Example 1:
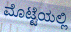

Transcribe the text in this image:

ಮೊಟ್ಟೆಯಲ್ಲಿ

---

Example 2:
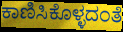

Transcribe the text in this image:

ಕಾಣಿಸಿಕೊಳ್ಳದಂತೆ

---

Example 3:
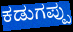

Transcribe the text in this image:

ಕಡುಗಪ್ಪು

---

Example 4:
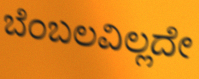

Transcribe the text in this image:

ಬೆಂಬಲವಿಲ್ಲದೇ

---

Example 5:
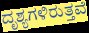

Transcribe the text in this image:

ದೃಶ್ಯಗಳಿರುತ್ತವೆ